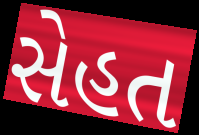
સેહત